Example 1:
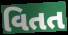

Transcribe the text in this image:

વિતત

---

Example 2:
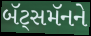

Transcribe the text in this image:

બૅટ્સમૅનને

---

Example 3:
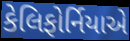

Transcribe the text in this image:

કેલિફોર્નિયાએ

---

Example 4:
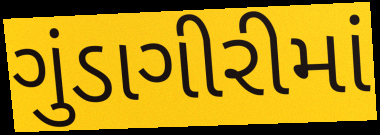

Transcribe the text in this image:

ગુંડાગીરીમાં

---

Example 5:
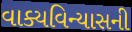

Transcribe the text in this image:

વાક્યવિન્યાસની